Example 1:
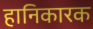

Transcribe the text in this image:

हानिकारक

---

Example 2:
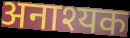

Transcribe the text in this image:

अनाश्यक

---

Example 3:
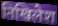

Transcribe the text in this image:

निखिलेश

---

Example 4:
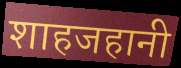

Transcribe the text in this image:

शाहजहानी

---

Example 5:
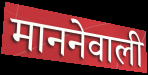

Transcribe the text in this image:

माननेवाली